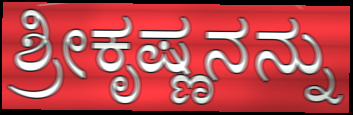
ಶ್ರೀಕೃಷ್ಣನನ್ನು